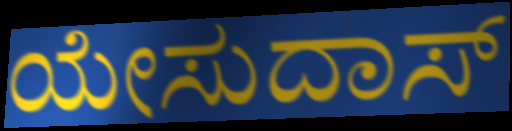
ಯೇಸುದಾಸ್